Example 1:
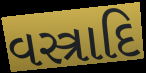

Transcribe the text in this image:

વસ્ત્રાદિ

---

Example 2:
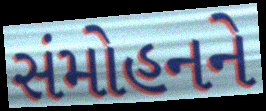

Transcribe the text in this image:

સંમોહનને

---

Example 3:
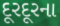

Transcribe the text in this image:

દૂરદૂરના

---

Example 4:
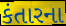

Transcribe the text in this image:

કંતારના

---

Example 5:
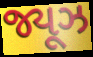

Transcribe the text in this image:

જ્યૂઝ